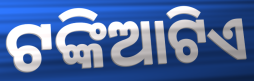
ଟଙ୍କିଆଟିଏ